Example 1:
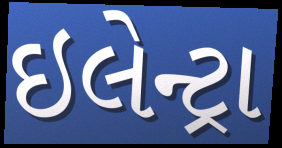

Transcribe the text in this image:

ઇલેન્ટ્રા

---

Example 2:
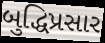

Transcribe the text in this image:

બુદ્ધિપ્રસાર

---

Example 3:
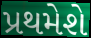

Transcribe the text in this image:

પ્રથમેશે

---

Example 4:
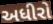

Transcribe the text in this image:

અધીરો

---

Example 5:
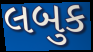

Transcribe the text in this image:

લબુક